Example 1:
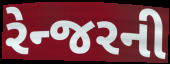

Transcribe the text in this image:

રેન્જરની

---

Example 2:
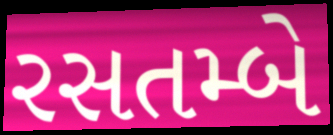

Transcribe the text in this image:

રસતમ્બે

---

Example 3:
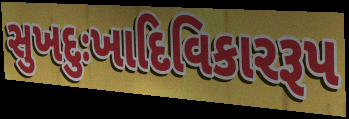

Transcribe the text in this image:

સુખદુઃખાદિવિકારરૂપ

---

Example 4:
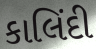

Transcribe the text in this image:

કાલિંદી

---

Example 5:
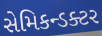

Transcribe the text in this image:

સેમિકન્ડક્ટર